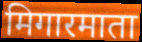
मिगारमाता